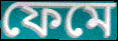
ফেমে